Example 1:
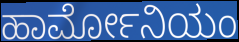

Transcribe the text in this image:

ಹಾರ್ಮೋನಿಯಂ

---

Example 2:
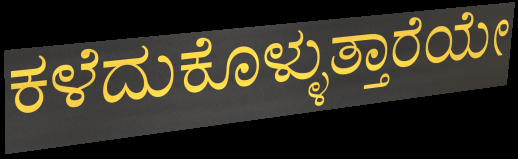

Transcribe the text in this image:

ಕಳೆದುಕೊಳ್ಳುತ್ತಾರೆಯೇ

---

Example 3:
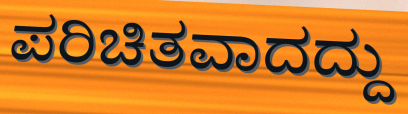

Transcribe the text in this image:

ಪರಿಚಿತವಾದದ್ದು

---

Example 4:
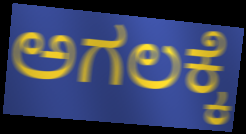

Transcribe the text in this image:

ಅಗಲಕ್ಕೆ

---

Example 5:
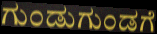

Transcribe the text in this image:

ಗುಂಡುಗುಂಡಗೆ